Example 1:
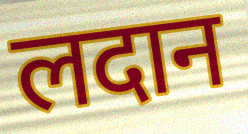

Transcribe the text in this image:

लदान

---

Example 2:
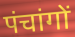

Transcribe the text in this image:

पंचांगों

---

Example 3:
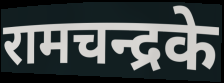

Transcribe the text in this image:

रामचन्द्रके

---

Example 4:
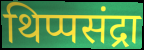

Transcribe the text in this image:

थिप्पसंद्रा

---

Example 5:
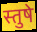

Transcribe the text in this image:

स्तुषे